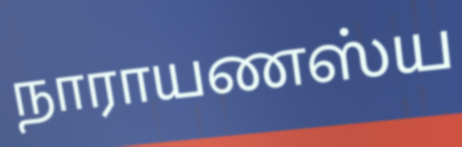
நாராயணஸ்ய